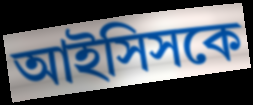
আইসিসকে